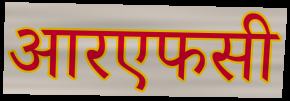
आरएफसी